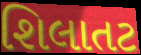
શિલાતટ